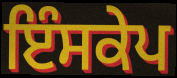
ਇੰਸਕੇਪ